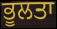
ਭੂਲਤਾ